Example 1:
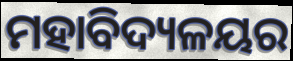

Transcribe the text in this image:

ମହାବିଦ୍ୟଳୟର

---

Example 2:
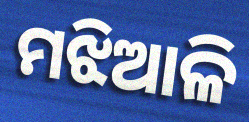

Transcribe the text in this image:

ମଝିଆଳି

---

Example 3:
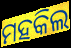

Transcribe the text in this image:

ମହକିଲ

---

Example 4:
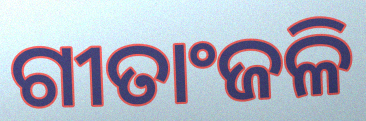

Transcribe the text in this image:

ଗୀତାଂଜଳି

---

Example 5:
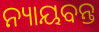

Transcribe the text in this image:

ନ୍ୟାୟବନ୍ତ